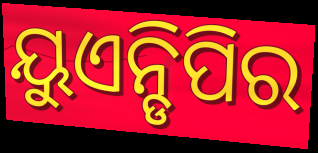
ୟୁଏନ୍ଡିପିର